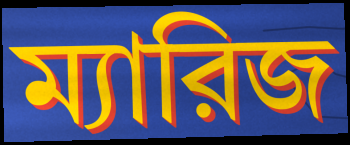
ম্যারিজ